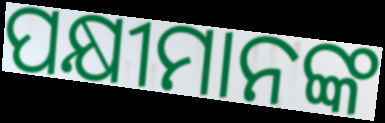
ପକ୍ଷୀମାନଙ୍କ